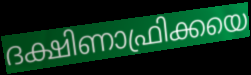
ദക്ഷിണാഫ്രിക്കയെ